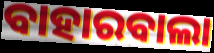
ବାହାରବାଲା